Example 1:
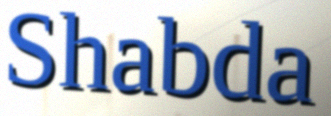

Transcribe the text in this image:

Shabda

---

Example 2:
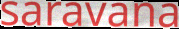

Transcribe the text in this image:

saravana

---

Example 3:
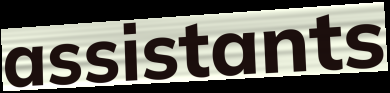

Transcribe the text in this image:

assistants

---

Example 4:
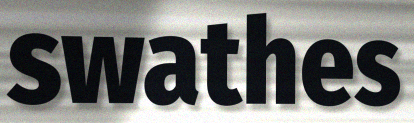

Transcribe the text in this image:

swathes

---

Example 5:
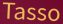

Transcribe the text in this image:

Tasso